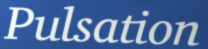
Pulsation